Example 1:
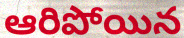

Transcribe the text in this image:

ఆరిపోయిన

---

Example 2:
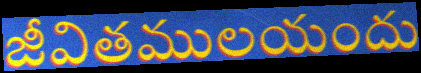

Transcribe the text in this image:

జీవితములయందు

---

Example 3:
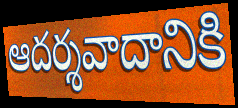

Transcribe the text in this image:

ఆదర్శవాదానికి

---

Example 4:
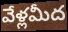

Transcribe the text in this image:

వేళ్లమీద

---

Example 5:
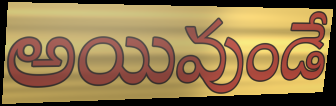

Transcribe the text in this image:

అయివుండే